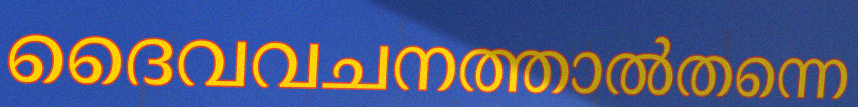
ദൈവവചനത്താൽതന്നെ